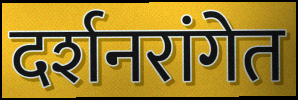
दर्शनरांगेत